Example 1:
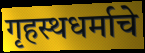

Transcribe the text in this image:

गृहस्थधर्माचे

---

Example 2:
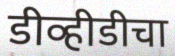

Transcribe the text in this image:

डीव्हीडीचा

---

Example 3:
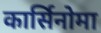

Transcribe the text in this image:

कार्सिनोमा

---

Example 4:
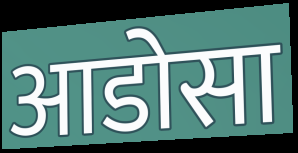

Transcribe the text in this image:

आडोसा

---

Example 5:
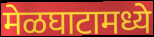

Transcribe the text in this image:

मेळघाटामध्ये